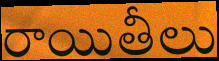
రాయితీలు